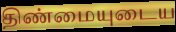
திண்மையுடைய